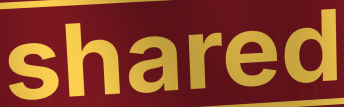
shared